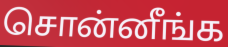
சொன்னீங்க